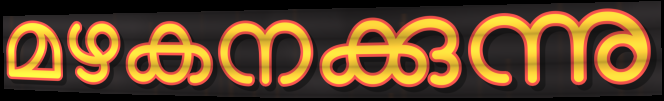
മഴകനക്കുന്നു